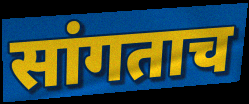
सांगताच